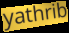
yathrib